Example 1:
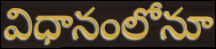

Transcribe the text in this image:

విధానంలోనూ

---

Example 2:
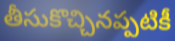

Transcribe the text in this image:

తీసుకొచ్చినప్పటికీ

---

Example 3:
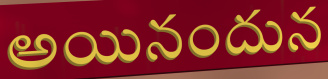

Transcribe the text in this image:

అయినందున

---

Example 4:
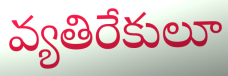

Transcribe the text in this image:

వ్యతిరేకులూ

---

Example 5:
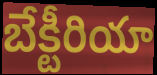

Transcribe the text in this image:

బేక్టీరియా